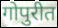
गोपुरीत